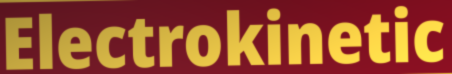
Electrokinetic